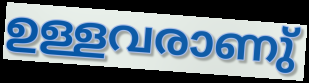
ഉള്ളവരാണു്